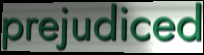
prejudiced